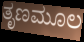
ತೃಣಮೂಲ